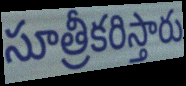
సూత్రీకరిస్తారు